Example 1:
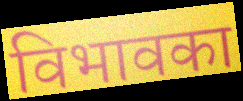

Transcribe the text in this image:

विभावका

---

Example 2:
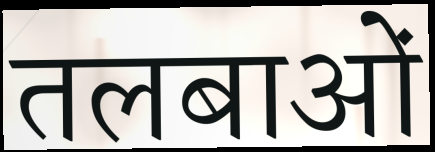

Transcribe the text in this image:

तलबाओं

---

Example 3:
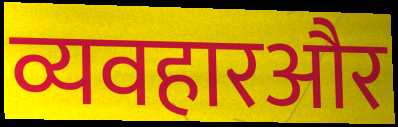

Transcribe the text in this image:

व्यवहारऔर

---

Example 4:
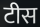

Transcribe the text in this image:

टीस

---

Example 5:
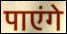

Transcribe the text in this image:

पाएंगे